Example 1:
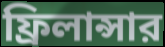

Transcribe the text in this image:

ফ্রিলান্সার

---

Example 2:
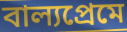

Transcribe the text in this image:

বাল্যপ্রেমে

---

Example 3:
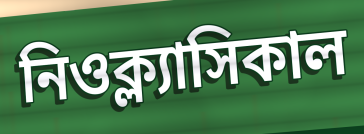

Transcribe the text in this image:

নিওক্ল্যাসিকাল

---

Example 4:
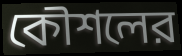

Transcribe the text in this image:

কৌশলের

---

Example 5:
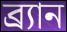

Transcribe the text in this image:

ব্র্যান